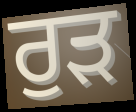
ਰੁੜ